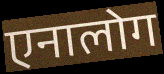
एनालोग